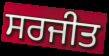
ਸਰਜੀਤ